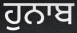
ਹੁਨਾਬ